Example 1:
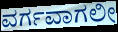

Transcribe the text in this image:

ವರ್ಗವಾಗಲೀ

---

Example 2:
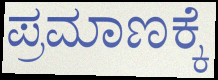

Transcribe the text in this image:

ಪ್ರಮಾಣಕ್ಕೆ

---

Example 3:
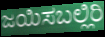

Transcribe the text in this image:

ಜಯಿಸಬಲ್ಲಿರಿ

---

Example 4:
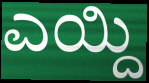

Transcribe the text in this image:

ಎಯ್ದಿ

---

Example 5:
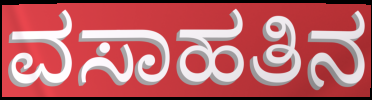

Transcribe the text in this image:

ವಸಾಹತಿನ